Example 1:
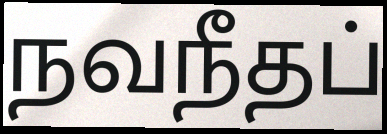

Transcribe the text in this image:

நவநீதப்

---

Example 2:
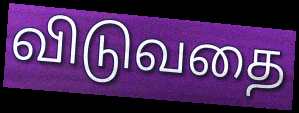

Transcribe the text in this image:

விடுவதை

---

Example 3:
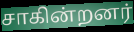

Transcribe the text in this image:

சாகின்றனர்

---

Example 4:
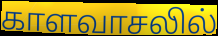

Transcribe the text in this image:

காளவாசலில்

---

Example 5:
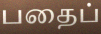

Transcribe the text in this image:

பதைப்